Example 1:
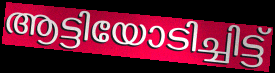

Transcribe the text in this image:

ആട്ടിയോടിച്ചിട്ട്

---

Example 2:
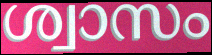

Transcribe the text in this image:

ശ്വാസം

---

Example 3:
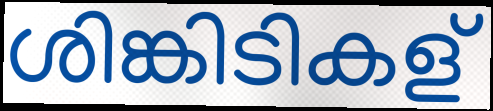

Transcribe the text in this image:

ശിങ്കിടികള്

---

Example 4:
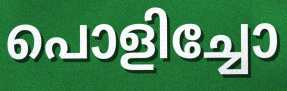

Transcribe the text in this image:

പൊളിച്ചോ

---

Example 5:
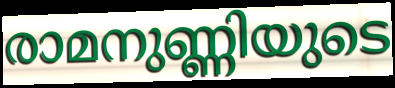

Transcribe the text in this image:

രാമനുണ്ണിയുടെ